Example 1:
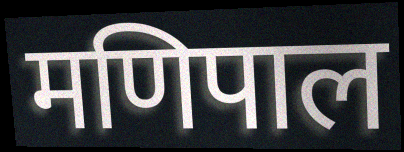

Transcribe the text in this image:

मणिपाल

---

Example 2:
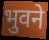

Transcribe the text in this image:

भुवने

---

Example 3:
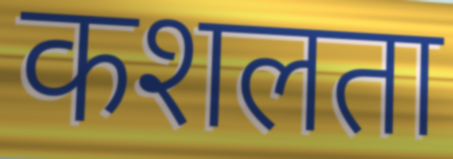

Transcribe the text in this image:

कशलता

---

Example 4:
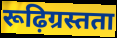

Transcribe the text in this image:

रूढ़िग्रस्तता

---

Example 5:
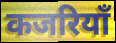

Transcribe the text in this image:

कजरियाँ